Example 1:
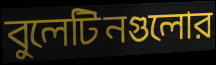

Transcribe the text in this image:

বুলেটিনগুলোর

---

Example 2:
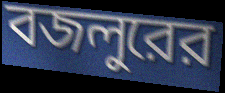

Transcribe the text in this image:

বজলুরের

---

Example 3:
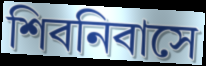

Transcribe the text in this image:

শিবনিবাসে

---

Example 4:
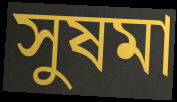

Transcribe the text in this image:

সুষমা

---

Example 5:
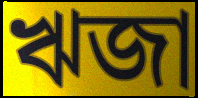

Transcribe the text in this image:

ঋজা